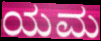
ಯಮ